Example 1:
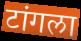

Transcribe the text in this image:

टांगला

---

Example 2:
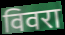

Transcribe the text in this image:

विवरा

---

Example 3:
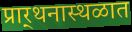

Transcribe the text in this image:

प्रार्थनास्थळात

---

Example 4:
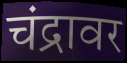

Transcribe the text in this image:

चंद्रावर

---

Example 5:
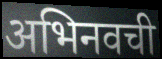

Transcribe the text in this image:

अभिनवची